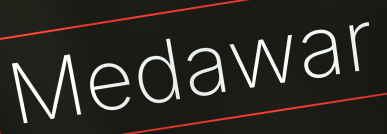
Medawar